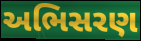
અભિસરણ